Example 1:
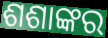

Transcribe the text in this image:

ଶଶାଙ୍କର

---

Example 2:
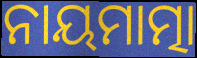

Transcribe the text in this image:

ନାୟମାତ୍ମା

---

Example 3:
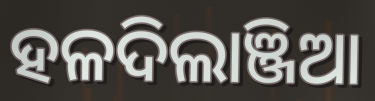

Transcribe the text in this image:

ହଳଦିଲାଞ୍ଜିଆ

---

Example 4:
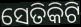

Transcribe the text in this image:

ସେତିକିଟି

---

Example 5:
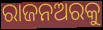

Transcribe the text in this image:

ରାଜନଅରକୁ